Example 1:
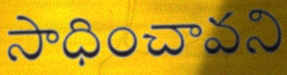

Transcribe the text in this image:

సాధించావని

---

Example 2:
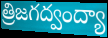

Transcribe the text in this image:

త్రిజగద్వంద్యా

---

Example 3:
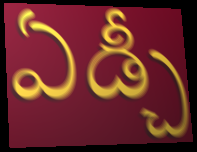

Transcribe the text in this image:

ఏడ్చీ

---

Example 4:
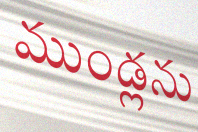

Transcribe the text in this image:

ముండ్లను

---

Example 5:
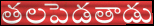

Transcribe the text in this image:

తలపెడతాడు